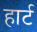
हार्ट